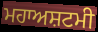
ਮਹਾਅਸ਼ਟਮੀ